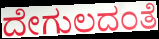
ದೇಗುಲದಂತೆ